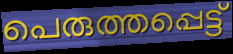
പെരുത്തപ്പെട്ട്